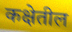
कक्षेतील